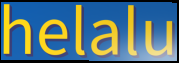
helalu